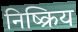
निष्क्रिय